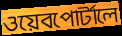
ওয়েবপোর্টালে